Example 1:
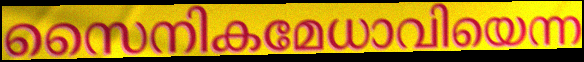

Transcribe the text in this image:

സൈനികമേധാവിയെന്ന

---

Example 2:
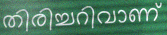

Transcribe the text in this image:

തിരിച്ചറിവാണ്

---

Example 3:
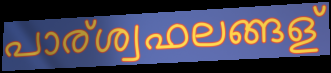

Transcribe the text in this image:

പാര്ശ്വഫലങ്ങള്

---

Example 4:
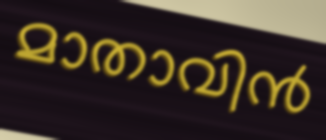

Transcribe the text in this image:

മാതാവിൻ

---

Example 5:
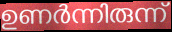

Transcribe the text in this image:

ഉണർന്നിരുന്ന്